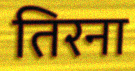
तिरना